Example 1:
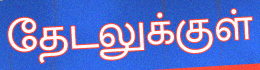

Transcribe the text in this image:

தேடலுக்குள்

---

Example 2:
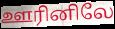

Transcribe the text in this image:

ஊரினிலே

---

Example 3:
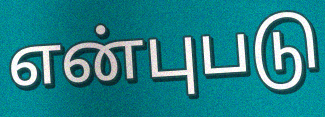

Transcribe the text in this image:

என்புபடு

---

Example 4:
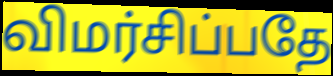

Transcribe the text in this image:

விமர்சிப்பதே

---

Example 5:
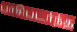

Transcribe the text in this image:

பாசிபடர்ந்த